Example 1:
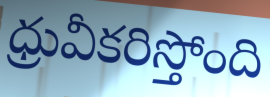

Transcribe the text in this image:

ధ్రువీకరిస్తోంది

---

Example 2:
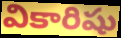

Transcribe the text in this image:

వికారిషు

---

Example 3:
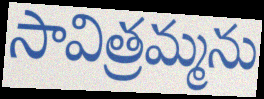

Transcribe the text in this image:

సావిత్రమ్మను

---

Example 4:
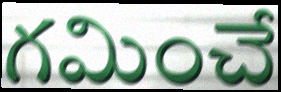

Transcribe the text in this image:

గమించే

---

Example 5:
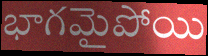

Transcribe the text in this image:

భాగమైపోయి